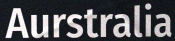
Aurstralia